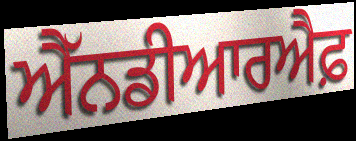
ਐੱਨਡੀਆਰਐਫ਼